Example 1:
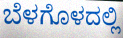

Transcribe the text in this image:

ಬೆಳಗೊಳದಲ್ಲಿ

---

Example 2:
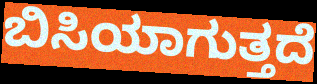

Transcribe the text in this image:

ಬಿಸಿಯಾಗುತ್ತದೆ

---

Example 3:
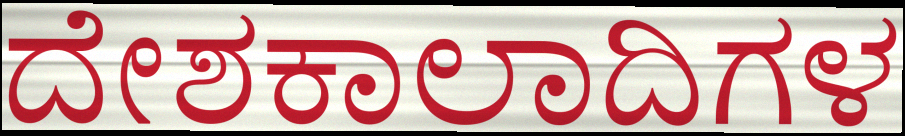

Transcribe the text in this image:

ದೇಶಕಾಲಾದಿಗಳ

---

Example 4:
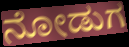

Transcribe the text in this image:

ನೋಡುಗ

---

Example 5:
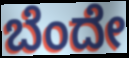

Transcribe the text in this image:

ಬೆಂದೇ